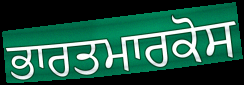
ਭਾਰਤਮਾਰਕੋਸ